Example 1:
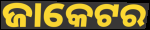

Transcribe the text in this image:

ଜାକେଟର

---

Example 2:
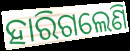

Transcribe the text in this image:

ହାରିଗଲେଣି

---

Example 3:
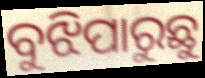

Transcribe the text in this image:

ବୁଝିପାରୁଛୁ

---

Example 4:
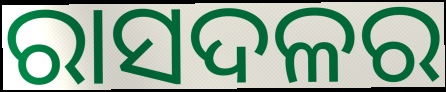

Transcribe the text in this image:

ରାସଦଳର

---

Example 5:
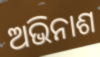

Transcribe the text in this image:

ଅଭିନାଶ